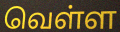
வெள்ள